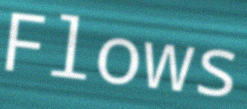
Flows